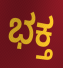
ಭಕ್ತ